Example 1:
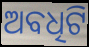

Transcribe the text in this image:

ଅବଧିଟି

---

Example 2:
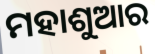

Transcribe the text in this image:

ମହାଶୁଆର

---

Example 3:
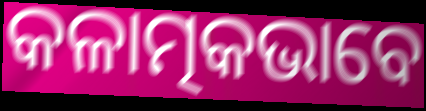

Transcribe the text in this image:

କଳାତ୍ମକଭାବେ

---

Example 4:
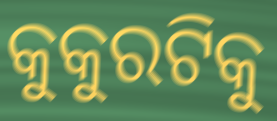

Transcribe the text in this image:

କୁକୁରଟିକୁ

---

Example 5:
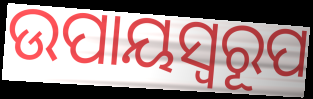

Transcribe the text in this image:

ଉପାୟସ୍ୱରୂପ